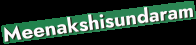
Meenakshisundaram